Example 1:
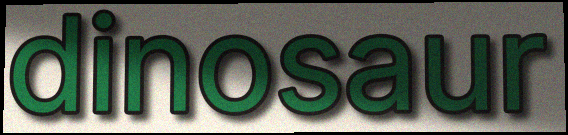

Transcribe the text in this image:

dinosaur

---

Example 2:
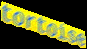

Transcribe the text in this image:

tortoise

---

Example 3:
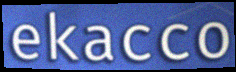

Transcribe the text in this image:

ekacco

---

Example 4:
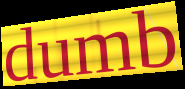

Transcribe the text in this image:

dumb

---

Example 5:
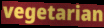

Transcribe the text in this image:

vegetarian